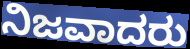
ನಿಜವಾದರು